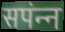
सपंन्न